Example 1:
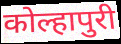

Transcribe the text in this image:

कोल्हापुरी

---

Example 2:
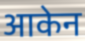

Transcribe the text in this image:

आकेन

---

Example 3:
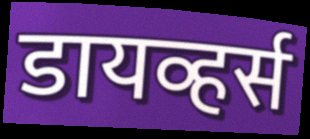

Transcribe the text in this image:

डायव्हर्स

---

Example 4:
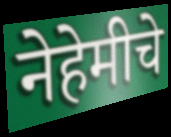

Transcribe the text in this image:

नेहेमीचे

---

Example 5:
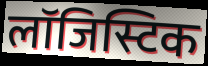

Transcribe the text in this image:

लॉजिस्टिक